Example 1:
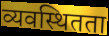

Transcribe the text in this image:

व्यवस्थितता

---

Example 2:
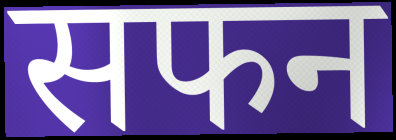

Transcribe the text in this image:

सफन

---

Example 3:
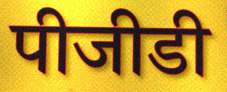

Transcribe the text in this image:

पीजीडी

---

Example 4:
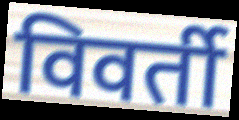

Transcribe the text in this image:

विवर्ती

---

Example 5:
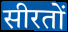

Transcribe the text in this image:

सीरतों